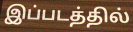
இப்படத்தில்